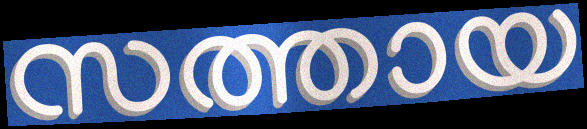
സത്തായ